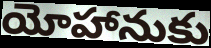
యోహానుకు